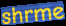
shrme